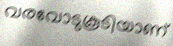
വരവോടുകൂടിയാണ്